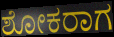
ಶೋಕರಾಗ